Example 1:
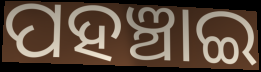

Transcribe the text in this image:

ପହଞ୍ଚାଇ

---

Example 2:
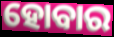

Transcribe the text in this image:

ହୋବାର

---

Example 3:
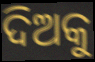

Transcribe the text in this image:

ଦିଅକୁ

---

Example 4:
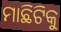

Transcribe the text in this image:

ମାଛିଟିକୁ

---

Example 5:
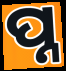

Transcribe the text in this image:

ପ୍ନ